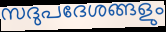
സദുപദേശങ്ങളും